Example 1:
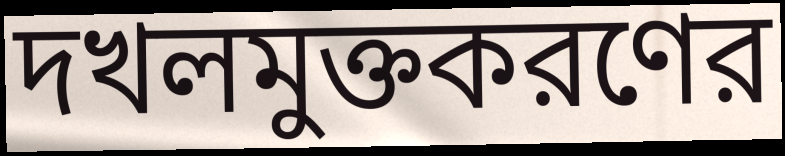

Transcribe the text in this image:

দখলমুক্তকরণের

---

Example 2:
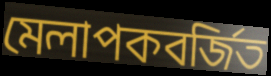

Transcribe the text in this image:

মেলাপকবর্জিত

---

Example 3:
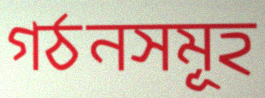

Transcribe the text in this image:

গঠনসমূহ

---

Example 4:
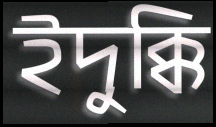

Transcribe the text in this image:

ইদুক্কি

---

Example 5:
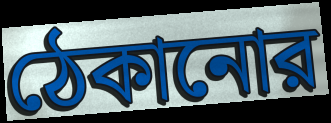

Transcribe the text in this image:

ঠেকানোর